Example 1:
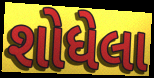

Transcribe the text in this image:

શોધેલા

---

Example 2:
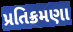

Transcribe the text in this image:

પ્રતિક્રમણા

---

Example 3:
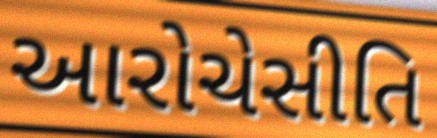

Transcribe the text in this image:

આરોચેસીતિ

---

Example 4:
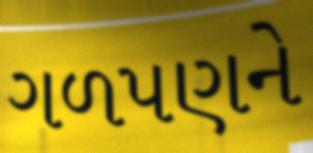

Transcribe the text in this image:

ગળપણને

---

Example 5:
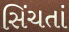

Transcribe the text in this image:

સિંચતાં